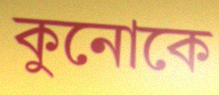
কুনোকে